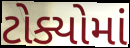
ટોક્યોમાં